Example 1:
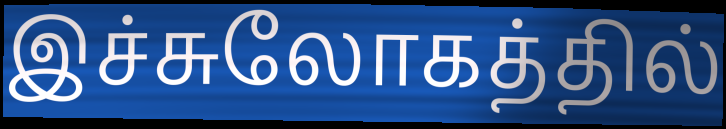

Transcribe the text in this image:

இச்சுலோகத்தில்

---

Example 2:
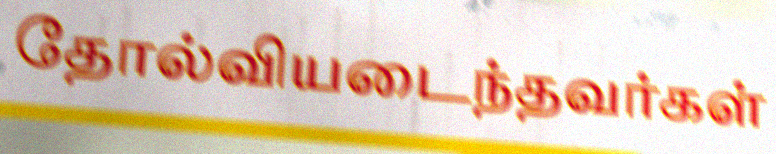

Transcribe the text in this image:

தோல்வியடைந்தவர்கள்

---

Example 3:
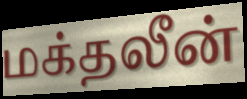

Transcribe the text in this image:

மக்தலீன்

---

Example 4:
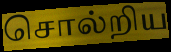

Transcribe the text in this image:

சொல்றிய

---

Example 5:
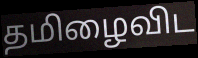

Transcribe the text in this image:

தமிழைவிட